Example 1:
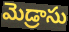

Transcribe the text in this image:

మెడ్రాసు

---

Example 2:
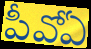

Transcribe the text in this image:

పీవోఏ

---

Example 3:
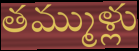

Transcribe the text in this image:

తమ్ముళ్లు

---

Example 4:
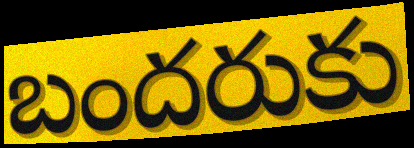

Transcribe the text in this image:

బందరుకు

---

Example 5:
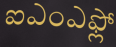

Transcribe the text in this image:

ఐఎంఎఫ్లో